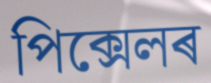
পিক্সেলৰ